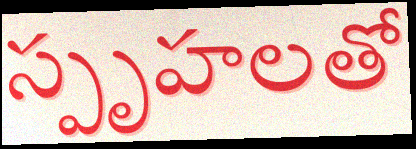
స్పృహలతో